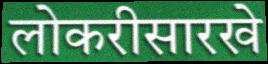
लोकरीसारखे